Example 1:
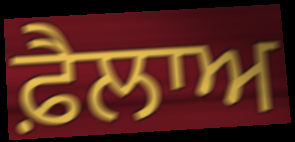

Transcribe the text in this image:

ਫ਼ੈਲਾਅ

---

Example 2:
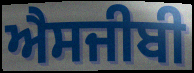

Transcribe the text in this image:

ਐਸਜੀਬੀ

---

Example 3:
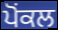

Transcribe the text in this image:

ਪੋਂਕਲ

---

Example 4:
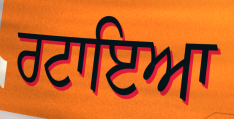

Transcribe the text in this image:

ਰਟਾਇਆ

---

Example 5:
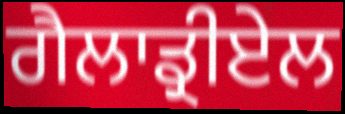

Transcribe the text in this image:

ਗੈਲਾਡ੍ਰੀਏਲ